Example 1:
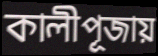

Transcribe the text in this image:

কালীপূজায়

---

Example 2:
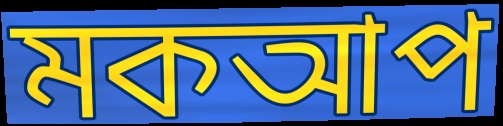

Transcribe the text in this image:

মকআপ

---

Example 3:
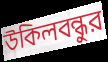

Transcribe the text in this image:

উকিলবন্ধুর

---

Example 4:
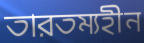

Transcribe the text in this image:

তারতম্যহীন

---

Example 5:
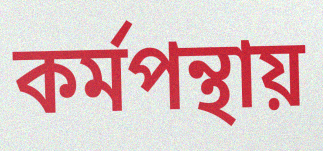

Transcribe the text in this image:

কর্মপন্থায়